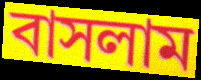
বাসলাম